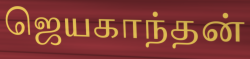
ஜெயகாந்தன்